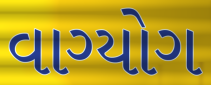
વાગ્યોગ